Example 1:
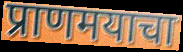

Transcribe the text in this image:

प्राणमयाचा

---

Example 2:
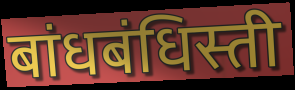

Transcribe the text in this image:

बांधबंधिस्ती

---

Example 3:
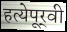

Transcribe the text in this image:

हत्येपूर्वी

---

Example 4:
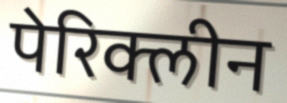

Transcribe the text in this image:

पेरिक्लीन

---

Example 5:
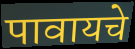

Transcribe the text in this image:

पावायचे